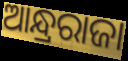
ଆନ୍ଧ୍ରରାଜା